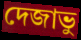
দেজাভু